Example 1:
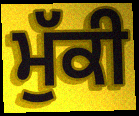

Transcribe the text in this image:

ਮੁੱਕੀ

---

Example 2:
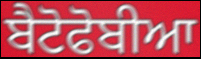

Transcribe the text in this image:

ਬੈਟੋਫੋਬੀਆ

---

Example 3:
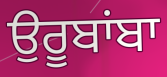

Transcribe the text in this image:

ਉਰੂਬਾਂਬਾ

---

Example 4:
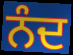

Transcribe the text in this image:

ਨੰਦ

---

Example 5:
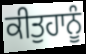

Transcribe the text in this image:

ਕੀਤੁਹਾਨੂੰ